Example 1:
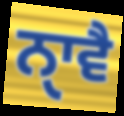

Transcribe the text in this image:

ਨੑਾਵੈ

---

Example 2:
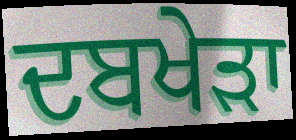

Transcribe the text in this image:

ਦਬਖੇੜਾ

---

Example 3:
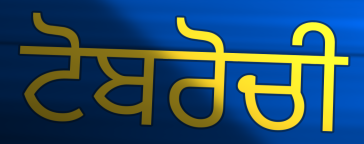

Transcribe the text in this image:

ਟੋਬਰੋਚੀ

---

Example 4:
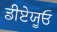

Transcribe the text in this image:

ਡੀਏਯੂਓ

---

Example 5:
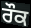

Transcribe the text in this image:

ਰੌਕ